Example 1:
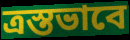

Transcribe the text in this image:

ত্রস্তভাবে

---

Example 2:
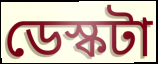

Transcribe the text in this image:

ডেস্কটা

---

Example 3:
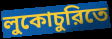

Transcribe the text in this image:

লুকোচুরিতে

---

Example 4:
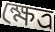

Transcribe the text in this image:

ক্ষেত্র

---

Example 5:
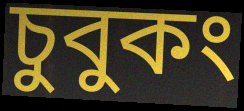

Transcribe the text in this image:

চুবুকং